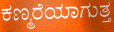
ಕಣ್ಮರೆಯಾಗುತ್ತ